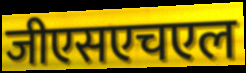
जीएसएचएल